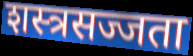
शस्त्रसज्जता